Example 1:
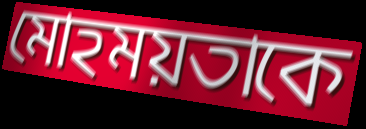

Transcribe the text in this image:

মোহময়তাকে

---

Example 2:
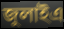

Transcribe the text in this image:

জুলাইএ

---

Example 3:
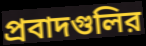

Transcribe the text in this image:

প্রবাদগুলির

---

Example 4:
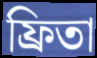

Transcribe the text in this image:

ফ্রিতা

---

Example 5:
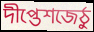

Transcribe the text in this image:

দীপ্তেশজেঠু